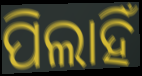
ପିଲାହିଁ